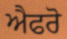
ਐਫਰੋ